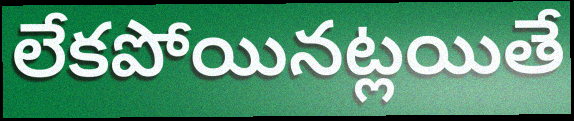
లేకపోయినట్లయితే